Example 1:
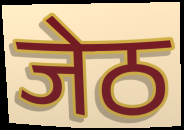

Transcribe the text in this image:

जेठ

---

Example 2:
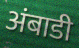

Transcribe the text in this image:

अंबाडी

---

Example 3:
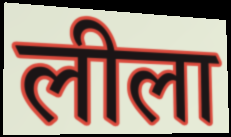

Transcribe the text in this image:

लीला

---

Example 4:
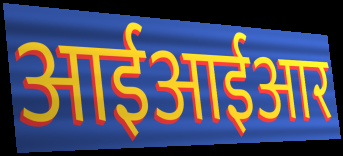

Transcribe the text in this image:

आईआईआर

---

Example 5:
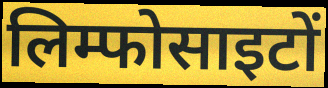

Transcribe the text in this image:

लिम्फोसाइटों